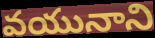
వయునాని